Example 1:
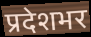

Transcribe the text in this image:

प्रदेशभर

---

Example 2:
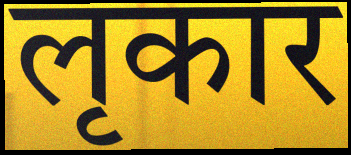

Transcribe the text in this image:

लृकार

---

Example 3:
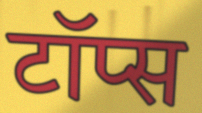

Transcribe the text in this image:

टॉप्स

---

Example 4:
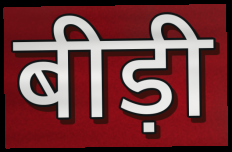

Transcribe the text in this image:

बीड़ी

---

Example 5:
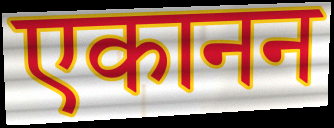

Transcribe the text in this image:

एकानन